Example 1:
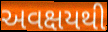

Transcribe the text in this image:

અવક્ષયથી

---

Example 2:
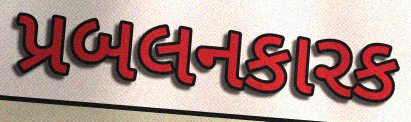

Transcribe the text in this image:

પ્રબલનકારક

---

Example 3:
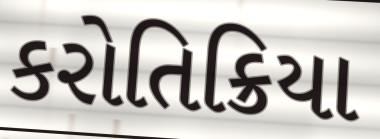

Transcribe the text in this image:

કરોતિક્રિયા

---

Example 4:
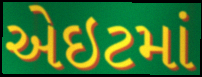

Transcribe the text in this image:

એઇટમાં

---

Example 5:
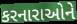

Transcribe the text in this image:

કરનારાઓને